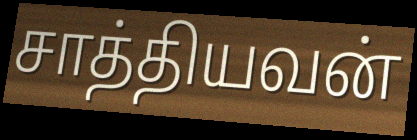
சாத்தியவன்